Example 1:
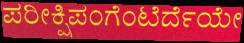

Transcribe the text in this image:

ಪರೀಕ್ಷಿಪಂಗೆಂಟೆರ್ದೆಯೇ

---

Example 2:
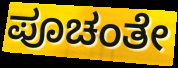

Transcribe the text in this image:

ಪೂಚಂತೇ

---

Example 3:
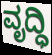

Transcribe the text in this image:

ವೃದ್ಧಿ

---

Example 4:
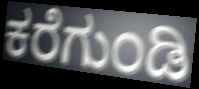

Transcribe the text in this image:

ಕರೆಗುಂಡಿ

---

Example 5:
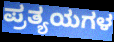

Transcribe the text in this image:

ಪ್ರತ್ಯಯಗಳ